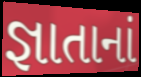
જ્ઞાતાનાં